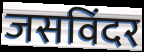
जसविंदर